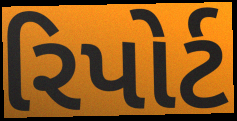
રિપોર્ટ